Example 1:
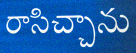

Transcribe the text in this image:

రాసిచ్చాను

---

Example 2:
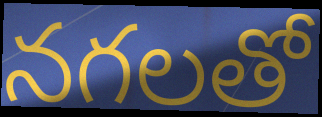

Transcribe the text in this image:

నగలతో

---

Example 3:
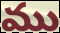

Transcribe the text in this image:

ము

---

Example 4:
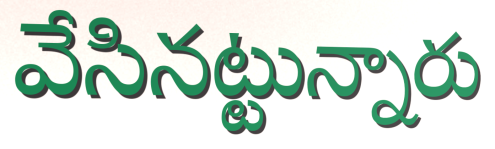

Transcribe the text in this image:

వేసినట్టున్నారు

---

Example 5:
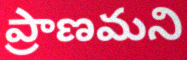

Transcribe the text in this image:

ప్రాణమని